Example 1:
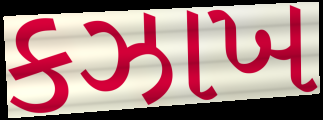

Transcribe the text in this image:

કઝાખ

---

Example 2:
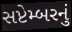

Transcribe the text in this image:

સપ્ટેમ્બરનું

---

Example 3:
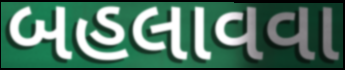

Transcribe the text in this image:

બહલાવવા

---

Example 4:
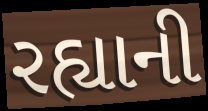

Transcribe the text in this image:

રહ્યાની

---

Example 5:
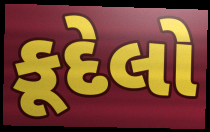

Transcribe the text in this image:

કૂદેલો